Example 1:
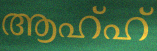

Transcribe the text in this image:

ആഹ്ഹ്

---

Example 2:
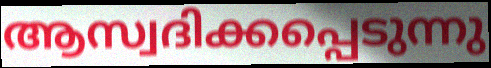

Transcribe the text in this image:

ആസ്വദിക്കപ്പെടുന്നു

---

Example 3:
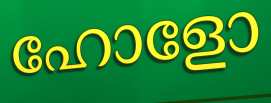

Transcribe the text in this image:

ഹോളോ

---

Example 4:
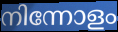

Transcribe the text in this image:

നിന്നോളം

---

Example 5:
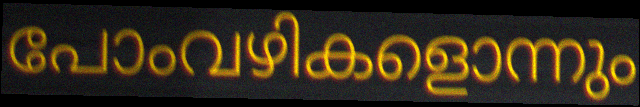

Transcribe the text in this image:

പോംവഴികളൊന്നും